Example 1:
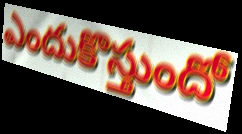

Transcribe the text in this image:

ఎందుకొస్తుందో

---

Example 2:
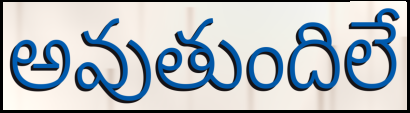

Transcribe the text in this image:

అవుతుందిలే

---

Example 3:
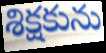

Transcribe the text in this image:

శిక్షకును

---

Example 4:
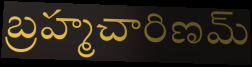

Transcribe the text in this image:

బ్రహ్మచారిణమ్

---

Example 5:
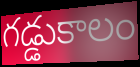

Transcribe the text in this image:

గడ్డుకాలం